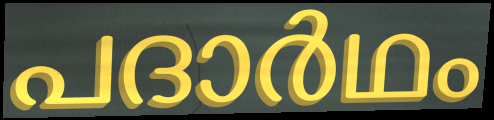
പദാർഥം